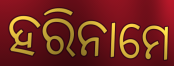
ହରିନାମେ